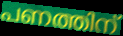
പണത്തിന്